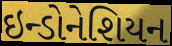
ઇન્ડોનેશિયન